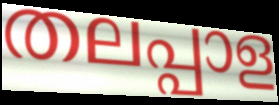
തലപ്പാള